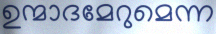
ഉന്മാദമേറുമെന്ന